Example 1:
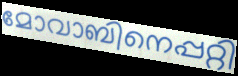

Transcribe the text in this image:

മോവാബിനെപ്പറ്റി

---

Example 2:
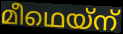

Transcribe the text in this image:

മീഥെയ്ന്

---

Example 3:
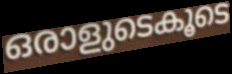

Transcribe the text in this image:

ഒരാളുടെകൂടെ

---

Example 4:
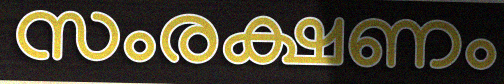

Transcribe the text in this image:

സംരക്ഷണം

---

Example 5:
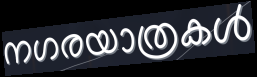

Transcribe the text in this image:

നഗരയാത്രകൾ